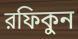
রফিকুন